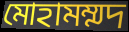
মোহামম্মদ